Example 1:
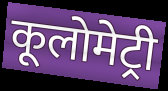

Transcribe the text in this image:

कूलोमेट्री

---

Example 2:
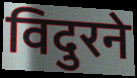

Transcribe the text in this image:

विदुरने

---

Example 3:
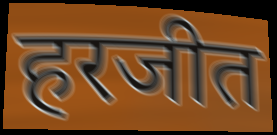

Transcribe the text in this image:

हरजीत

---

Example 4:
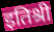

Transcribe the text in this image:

इतिश्री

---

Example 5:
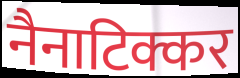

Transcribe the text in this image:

नैनाटिक्कर